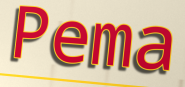
Pema